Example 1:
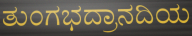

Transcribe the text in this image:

ತುಂಗಭದ್ರಾನದಿಯ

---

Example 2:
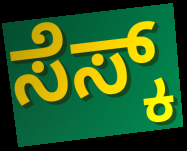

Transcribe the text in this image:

ಸೆಸ್ಕ್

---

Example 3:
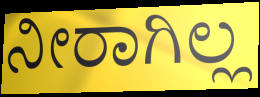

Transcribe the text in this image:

ನೀರಾಗಿಲ್ಲ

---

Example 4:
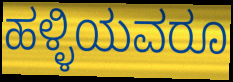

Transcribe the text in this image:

ಹಳ್ಳಿಯವರೂ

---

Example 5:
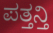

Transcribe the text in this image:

ಪತ್ತನ್ತಿ